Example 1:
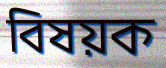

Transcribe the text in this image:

বিষয়ক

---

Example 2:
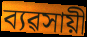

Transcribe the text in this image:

ব্যৱসায়ী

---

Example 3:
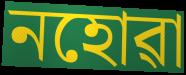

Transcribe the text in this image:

নহোৱা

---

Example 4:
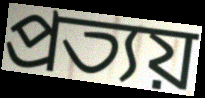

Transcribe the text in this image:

প্ৰত্যয়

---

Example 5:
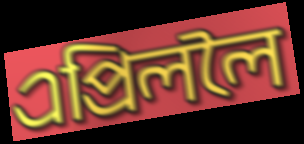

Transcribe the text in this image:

এপ্ৰিললৈ